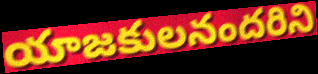
యాజకులనందరిని